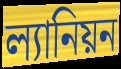
ল্যানিয়ন